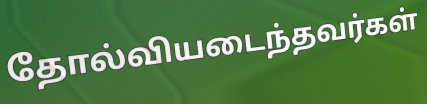
தோல்வியடைந்தவர்கள்